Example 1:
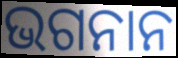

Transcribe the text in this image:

ଭଗନାନ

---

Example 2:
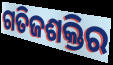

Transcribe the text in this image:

ଗତିଜଶକ୍ତିର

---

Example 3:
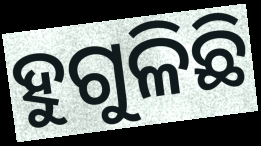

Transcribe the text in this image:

ହୁଗୁଳିଛି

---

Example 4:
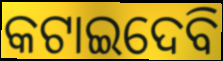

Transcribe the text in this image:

କଟାଇଦେବି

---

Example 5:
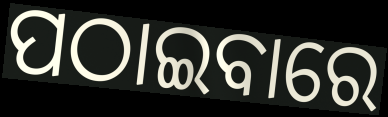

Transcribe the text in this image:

ପଠାଇବାରେ